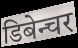
डिबेन्चर